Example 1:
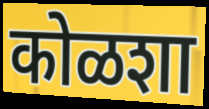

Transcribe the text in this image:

कोळशा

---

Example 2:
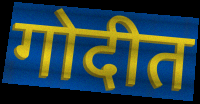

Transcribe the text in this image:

गोदीत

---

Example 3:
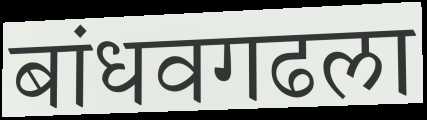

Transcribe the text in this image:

बांधवगढला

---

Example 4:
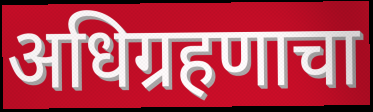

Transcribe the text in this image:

अधिग्रहणाचा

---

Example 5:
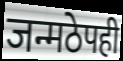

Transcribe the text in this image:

जन्मठेपही